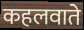
कहलवाते